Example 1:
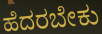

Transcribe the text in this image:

ಹೆದರಬೇಕು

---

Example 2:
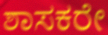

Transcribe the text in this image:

ಶಾಸಕರೇ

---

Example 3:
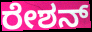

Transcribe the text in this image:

ರೇಶನ್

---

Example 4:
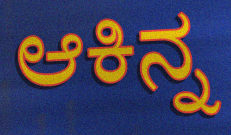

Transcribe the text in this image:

ಆಕಿನ್ನ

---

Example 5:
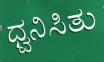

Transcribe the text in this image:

ಧ್ವನಿಸಿತು